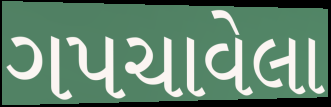
ગપચાવેલા